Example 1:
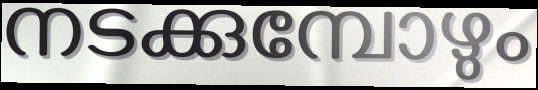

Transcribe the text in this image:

നടക്കുമ്പോഴും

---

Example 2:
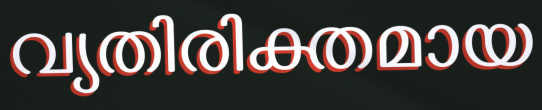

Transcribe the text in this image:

വ്യതിരിക്തമായ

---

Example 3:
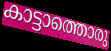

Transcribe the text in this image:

കാട്ടാത്തൊരു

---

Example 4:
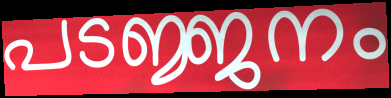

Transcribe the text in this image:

പടജ്ജനം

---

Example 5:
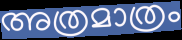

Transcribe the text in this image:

അത്രമാത്രം